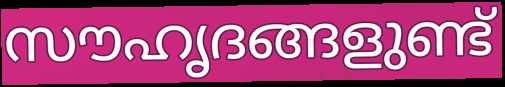
സൗഹൃദങ്ങളുണ്ട്